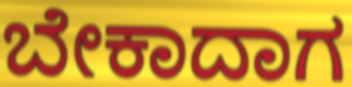
ಬೇಕಾದಾಗ